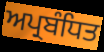
ਅਪ੍ਰਬੰਧਿਤ